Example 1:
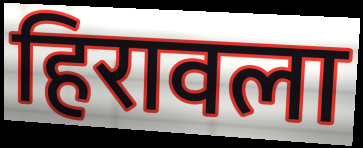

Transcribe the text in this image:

हिरावला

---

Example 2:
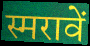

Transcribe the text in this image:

स्मरावें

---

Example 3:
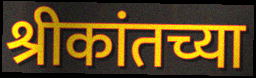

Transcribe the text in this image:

श्रीकांतच्या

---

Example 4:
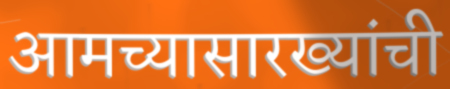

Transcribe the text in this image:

आमच्यासारख्यांची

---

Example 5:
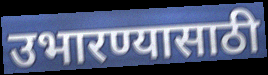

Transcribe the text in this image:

उभारण्यासाठी